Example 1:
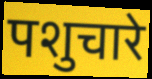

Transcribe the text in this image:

पशुचारे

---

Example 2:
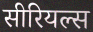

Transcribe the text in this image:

सीरियल्स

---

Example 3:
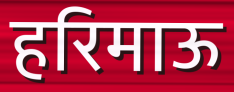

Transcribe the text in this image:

हरिमाऊ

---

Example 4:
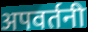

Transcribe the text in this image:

अपवर्तनी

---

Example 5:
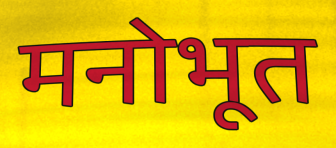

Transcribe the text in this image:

मनोभूत